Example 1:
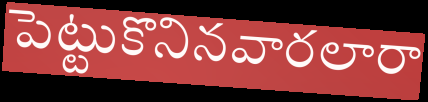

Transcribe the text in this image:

పెట్టుకొనినవారలారా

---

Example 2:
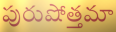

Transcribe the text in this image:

పురుషోత్తమా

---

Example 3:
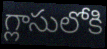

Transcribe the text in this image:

గ్లాసులోకి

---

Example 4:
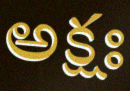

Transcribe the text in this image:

అక్షః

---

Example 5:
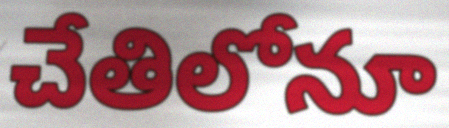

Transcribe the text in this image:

చేతిలోనూ